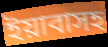
ইয়াবাসহ